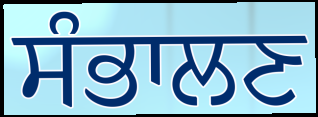
ਸੰਭਾਲਣ